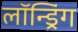
लॉन्ड्रिंग